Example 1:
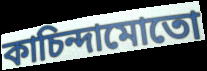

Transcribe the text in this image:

কাচিন্দামোতো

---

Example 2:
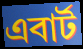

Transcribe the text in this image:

এবার্ট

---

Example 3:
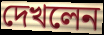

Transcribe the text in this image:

দেখলেন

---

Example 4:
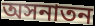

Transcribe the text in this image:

অসনাতন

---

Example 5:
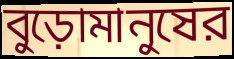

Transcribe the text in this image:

বুড়োমানুষের